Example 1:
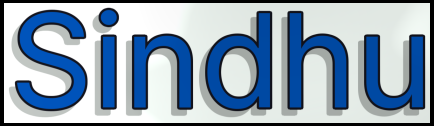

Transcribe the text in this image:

Sindhu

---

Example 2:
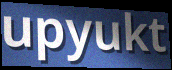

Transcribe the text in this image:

upyukt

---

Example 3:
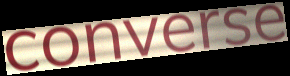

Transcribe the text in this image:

converse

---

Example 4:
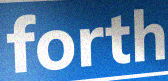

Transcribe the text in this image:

forth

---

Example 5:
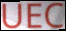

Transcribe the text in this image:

UEC